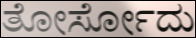
ತೋರ್ಸೋದು